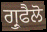
ਗ੍ਰੁਫੈਲੋ